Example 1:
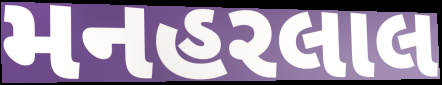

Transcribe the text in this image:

મનહરલાલ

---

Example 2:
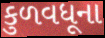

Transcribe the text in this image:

કુળવધૂના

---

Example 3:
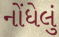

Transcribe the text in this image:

નોંધેલું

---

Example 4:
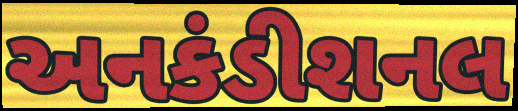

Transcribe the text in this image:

અનકંડીશનલ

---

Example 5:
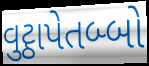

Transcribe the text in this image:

વુટ્ઠાપેતબ્બો